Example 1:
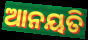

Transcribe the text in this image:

ଆନୟତି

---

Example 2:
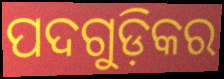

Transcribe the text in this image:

ପଦଗୁଡ଼ିକର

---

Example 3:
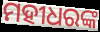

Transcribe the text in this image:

ମହୀଧରଙ୍କ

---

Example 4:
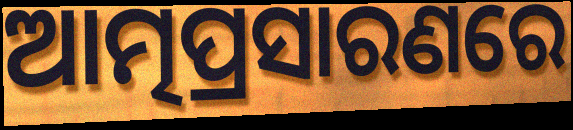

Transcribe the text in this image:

ଆତ୍ମପ୍ରସାରଣରେ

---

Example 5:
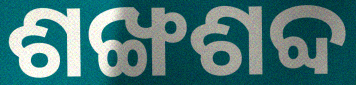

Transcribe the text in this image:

ଶଙ୍ଖଶବ୍ଦ